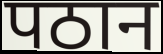
पठान